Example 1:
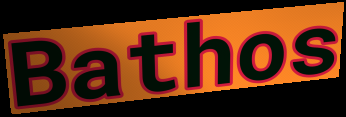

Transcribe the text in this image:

Bathos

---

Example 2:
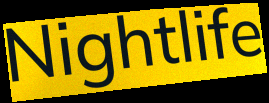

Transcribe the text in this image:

Nightlife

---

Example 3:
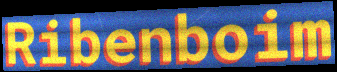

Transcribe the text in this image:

Ribenboim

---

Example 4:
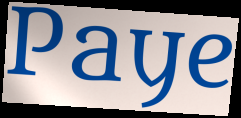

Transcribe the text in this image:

Paye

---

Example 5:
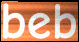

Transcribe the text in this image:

beb